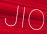
JIO